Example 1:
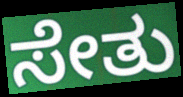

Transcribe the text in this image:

ಸೇತು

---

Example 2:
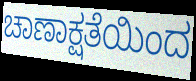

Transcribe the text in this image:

ಚಾಣಾಕ್ಷತೆಯಿಂದ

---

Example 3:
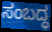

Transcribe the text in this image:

ಸಂಬದ್ಧ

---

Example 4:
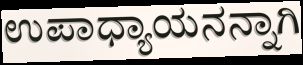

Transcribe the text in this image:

ಉಪಾಧ್ಯಾಯನನ್ನಾಗಿ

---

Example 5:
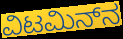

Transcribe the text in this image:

ವಿಟಮಿನ್‌ನ